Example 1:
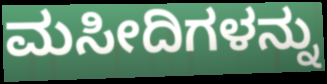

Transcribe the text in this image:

ಮಸೀದಿಗಳನ್ನು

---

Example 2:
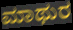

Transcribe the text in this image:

ಮಾಥುರ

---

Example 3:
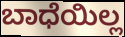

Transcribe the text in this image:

ಬಾಧೆಯಿಲ್ಲ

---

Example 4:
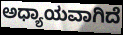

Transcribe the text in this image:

ಅಧ್ಯಾಯವಾಗಿದೆ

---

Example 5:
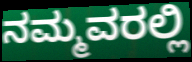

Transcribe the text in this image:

ನಮ್ಮವರಲ್ಲಿ